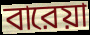
বারেয়া